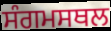
ਸੰਗਮਸਥਲ